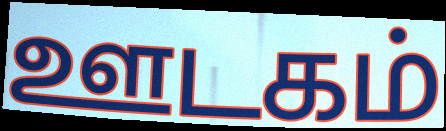
ஊடகம்